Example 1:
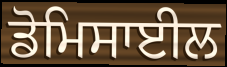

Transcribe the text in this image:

ਡੋਮਿਸਾਈਲ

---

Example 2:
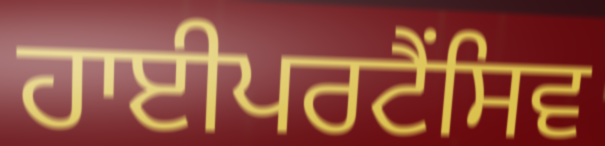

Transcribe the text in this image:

ਹਾਈਪਰਟੈਂਸਿਵ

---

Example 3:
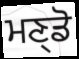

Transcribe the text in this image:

ਮਣ੍ਡੋ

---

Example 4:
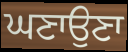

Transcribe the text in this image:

ਘਣਾਉਣਾ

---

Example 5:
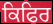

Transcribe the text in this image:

ਕਿਫਿਰ